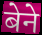
बेने